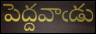
పెద్దవాఁడు